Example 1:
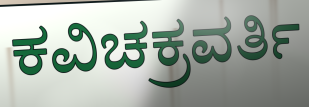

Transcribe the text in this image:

ಕವಿಚಕ್ರವರ್ತಿ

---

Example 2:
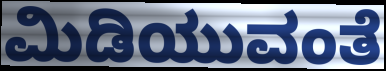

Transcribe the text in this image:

ಮಿಡಿಯುವಂತೆ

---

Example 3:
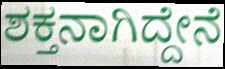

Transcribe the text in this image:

ಶಕ್ತನಾಗಿದ್ದೇನೆ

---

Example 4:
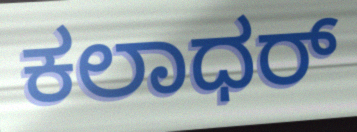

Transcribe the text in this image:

ಕಲಾಧರ್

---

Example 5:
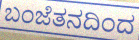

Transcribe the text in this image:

ಬಂಜೆತನದಿಂದ